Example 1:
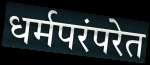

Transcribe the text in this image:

धर्मपरंपरेत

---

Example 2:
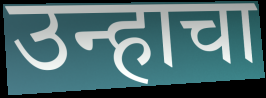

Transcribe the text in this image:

उन्हाचा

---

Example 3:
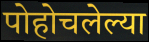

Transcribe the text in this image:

पोहोचलेल्या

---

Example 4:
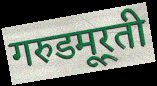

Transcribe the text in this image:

गरुडमूर्ती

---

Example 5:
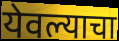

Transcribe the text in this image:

येवल्याचा